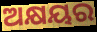
ଅକ୍ଷୟର